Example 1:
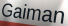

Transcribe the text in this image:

Gaiman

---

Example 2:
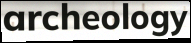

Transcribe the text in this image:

archeology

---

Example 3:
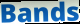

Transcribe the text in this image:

Bands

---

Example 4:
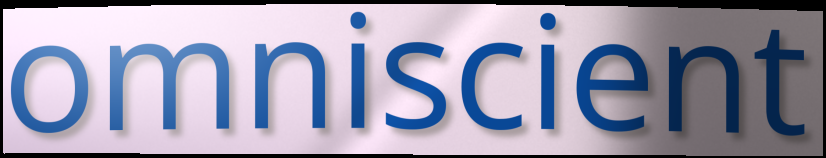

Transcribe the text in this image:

omniscient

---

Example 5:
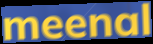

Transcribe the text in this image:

meenal